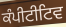
ਕੰਪੀਟੀਟਿਵ